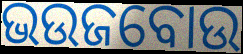
ଭଉଜବୋଉ